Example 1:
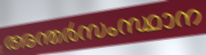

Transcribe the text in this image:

അന്തർസംസ്ഥാന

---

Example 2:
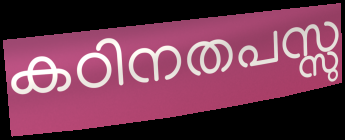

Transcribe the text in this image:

കഠിനതപസ്സു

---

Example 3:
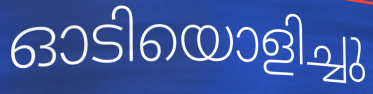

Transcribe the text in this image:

ഓടിയൊളിച്ചു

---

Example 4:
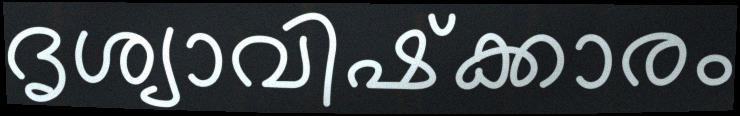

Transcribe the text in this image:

ദൃശ്യാവിഷ്‌ക്കാരം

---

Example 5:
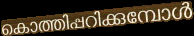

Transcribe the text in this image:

കൊത്തിപ്പറിക്കുമ്പോൾ